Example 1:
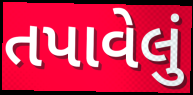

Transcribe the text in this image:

તપાવેલું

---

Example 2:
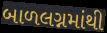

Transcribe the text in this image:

બાળલગ્નમાંથી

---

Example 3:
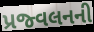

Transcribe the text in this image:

પ્રજ્વલનની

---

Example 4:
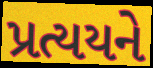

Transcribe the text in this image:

પ્રત્યયને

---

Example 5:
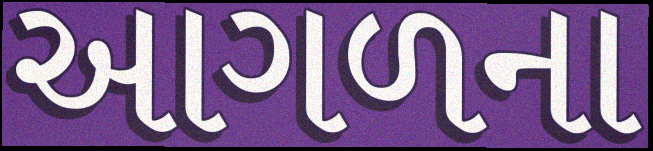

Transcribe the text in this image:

આગળના